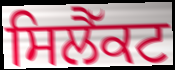
ਸਿਲੈੱਕਟ